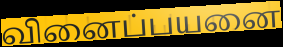
வினைப்பயனை